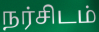
நர்சிடம்